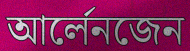
আৰ্লেনজেন